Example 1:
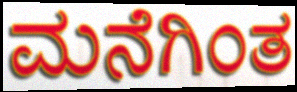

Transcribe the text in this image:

ಮನೆಗಿಂತ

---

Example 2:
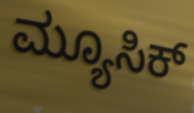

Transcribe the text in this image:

ಮ್ಯೂಸಿಕ್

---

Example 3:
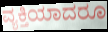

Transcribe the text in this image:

ವ್ಯಕ್ತಿಯಾದರೂ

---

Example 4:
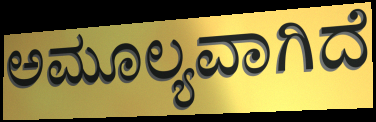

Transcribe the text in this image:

ಅಮೂಲ್ಯವಾಗಿದೆ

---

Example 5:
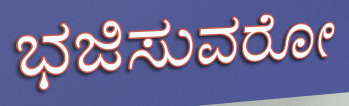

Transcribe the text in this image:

ಭಜಿಸುವರೋ